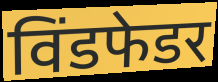
विंडफेडर